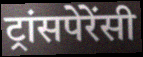
ट्रांसपेरेंसी